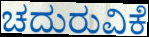
ಚದುರುವಿಕೆ